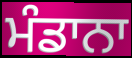
ਮੰਡਾਨਾ